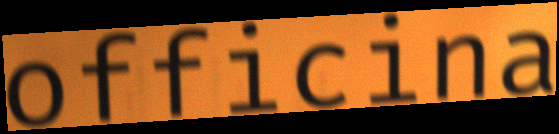
officina